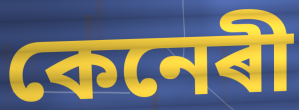
কেনেৰী